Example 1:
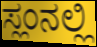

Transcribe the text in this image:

ಸ್ಲಂನಲ್ಲಿ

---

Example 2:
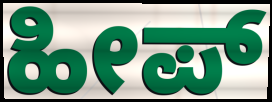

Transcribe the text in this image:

ಹೀಪ್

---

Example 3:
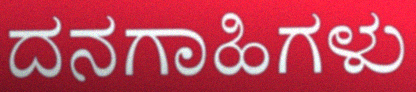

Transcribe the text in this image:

ದನಗಾಹಿಗಳು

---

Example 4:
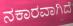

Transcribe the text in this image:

ನಕಾರವಾಗಿದೆ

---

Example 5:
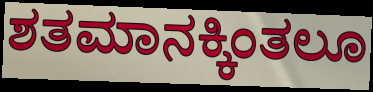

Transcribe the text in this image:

ಶತಮಾನಕ್ಕಿಂತಲೂ